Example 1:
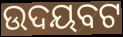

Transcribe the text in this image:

ଉଦୟବଟ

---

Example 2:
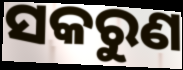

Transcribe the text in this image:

ସକରୁଣ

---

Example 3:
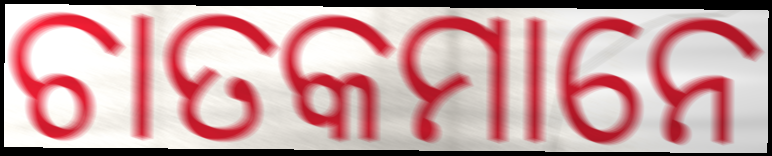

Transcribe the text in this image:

ଚାତକମାନେ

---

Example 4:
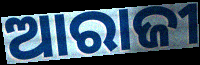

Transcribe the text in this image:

ଆରାଜୀ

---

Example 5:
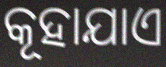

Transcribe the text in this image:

କୂହାଯାଏ